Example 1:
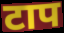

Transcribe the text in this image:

टाप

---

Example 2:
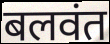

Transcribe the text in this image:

बलवंत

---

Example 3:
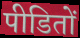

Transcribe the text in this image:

पीडितों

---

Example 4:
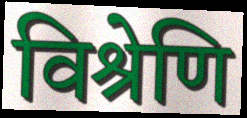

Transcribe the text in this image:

विश्रेणि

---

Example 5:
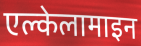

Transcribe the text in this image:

एल्केलामाइन